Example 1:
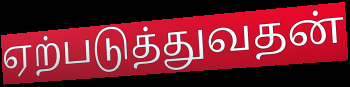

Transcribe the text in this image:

ஏற்படுத்துவதன்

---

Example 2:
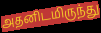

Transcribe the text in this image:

அதனிடமிருந்து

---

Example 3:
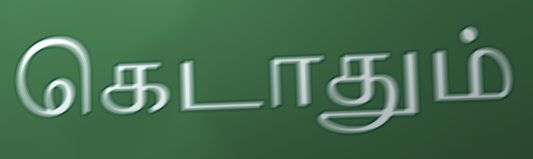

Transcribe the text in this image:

கெடாதும்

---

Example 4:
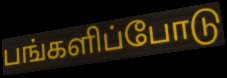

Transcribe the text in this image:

பங்களிப்போடு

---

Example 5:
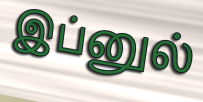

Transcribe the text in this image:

இப்னுல்